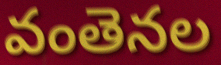
వంతెనల